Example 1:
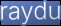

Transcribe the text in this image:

raydu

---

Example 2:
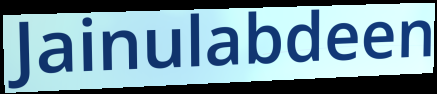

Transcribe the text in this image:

Jainulabdeen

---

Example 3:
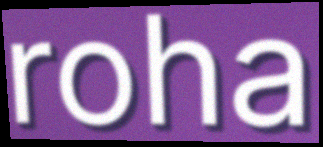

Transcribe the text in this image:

roha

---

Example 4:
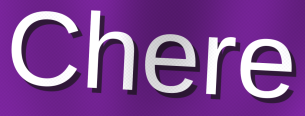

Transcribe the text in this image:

Chere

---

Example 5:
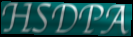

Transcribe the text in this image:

HSDPA